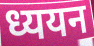
ध्ययन